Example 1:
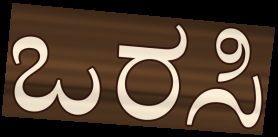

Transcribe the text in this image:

ಒರಸಿ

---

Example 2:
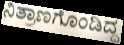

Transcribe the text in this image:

ನಿತ್ರಾಣಗೊಂಡಿದ್ದ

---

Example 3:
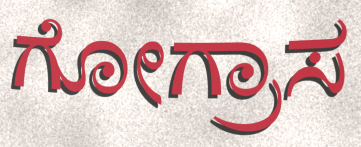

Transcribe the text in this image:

ಗೋಗ್ರಾಸ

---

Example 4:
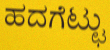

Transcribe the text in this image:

ಹದಗೆಟ್ಟು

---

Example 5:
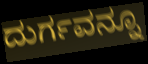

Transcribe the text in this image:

ದುರ್ಗವನ್ನೂ